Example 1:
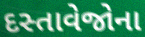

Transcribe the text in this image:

દસ્તાવેજોના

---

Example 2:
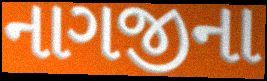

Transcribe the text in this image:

નાગજીના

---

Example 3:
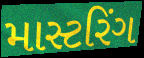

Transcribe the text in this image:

માસ્ટરિંગ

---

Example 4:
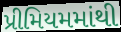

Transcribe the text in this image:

પ્રીમિયમમાંથી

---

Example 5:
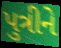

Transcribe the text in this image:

પુત્રીને